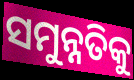
ସମୁନ୍ନତିକୁ